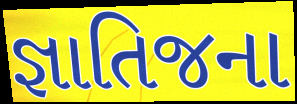
જ્ઞાતિજના